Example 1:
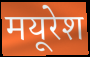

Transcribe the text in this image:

मयूरेश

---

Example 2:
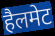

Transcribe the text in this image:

हैलमेट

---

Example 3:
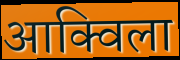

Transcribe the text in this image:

आक्विला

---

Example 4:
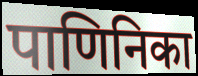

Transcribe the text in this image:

पाणिनिका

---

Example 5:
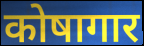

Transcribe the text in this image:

कोषागार